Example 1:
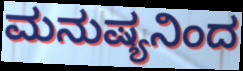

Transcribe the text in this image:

ಮನುಷ್ಯನಿಂದ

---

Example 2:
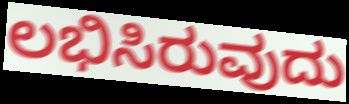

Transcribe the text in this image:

ಲಭಿಸಿರುವುದು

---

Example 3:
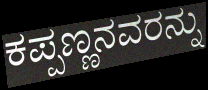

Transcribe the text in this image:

ಕಪ್ಪಣ್ಣನವರನ್ನು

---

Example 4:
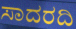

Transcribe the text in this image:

ಸಾದರದಿ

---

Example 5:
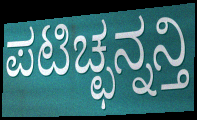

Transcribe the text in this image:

ಪಟಿಚ್ಛನ್ನನ್ತಿ